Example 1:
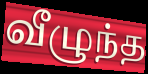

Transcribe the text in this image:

வீழுந்த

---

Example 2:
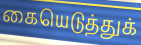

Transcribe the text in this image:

கையெடுத்துக்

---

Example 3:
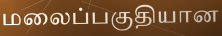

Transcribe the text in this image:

மலைப்பகுதியான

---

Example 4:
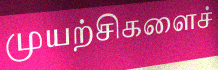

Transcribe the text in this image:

முயற்சிகளைச்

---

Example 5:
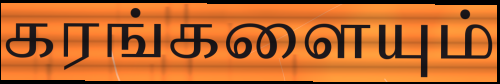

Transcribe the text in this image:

கரங்களையும்